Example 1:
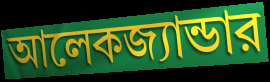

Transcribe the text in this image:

আলেকজ্যান্ডার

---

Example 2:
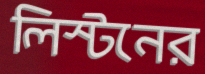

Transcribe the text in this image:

লিস্টনের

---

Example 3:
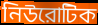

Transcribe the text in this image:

নিউরোটিক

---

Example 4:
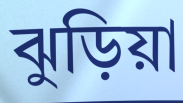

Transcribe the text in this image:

ঝুড়িয়া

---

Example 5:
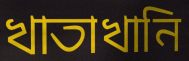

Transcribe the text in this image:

খাতাখানি